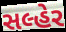
સલ્હેર